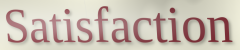
Satisfaction